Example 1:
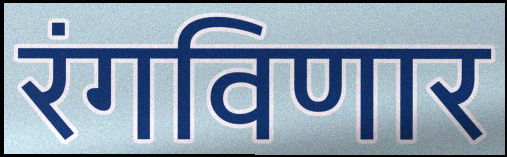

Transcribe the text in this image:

रंगविणार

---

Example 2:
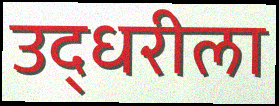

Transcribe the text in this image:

उद्धरीला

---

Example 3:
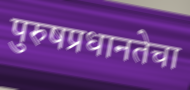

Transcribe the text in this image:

पुरुषप्रधानतेचा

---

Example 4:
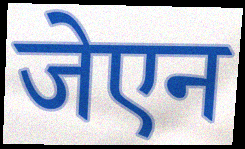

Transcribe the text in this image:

जेएन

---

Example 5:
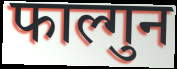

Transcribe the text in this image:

फाल्गुन